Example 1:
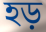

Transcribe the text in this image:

হড়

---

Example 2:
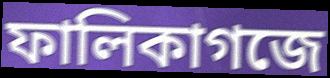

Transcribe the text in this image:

ফালিকাগজে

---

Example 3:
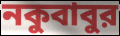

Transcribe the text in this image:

নকুবাবুর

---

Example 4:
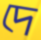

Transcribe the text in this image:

দে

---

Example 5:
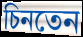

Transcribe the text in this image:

চিনতেন